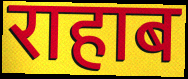
राहाब